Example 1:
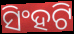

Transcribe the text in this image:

ସିଂହଟି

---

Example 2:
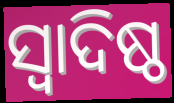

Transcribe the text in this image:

ସ୍ୱାଦିଷ୍ଠ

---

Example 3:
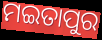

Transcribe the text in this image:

ମଇତାପୁର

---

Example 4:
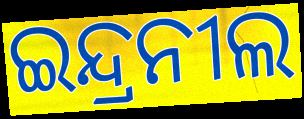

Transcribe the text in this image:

ଇନ୍ଦ୍ରନୀଲ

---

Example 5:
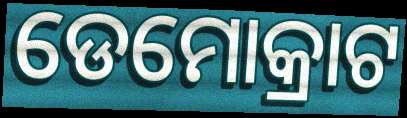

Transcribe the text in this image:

ଡେମୋକ୍ରାଟ